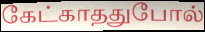
கேட்காததுபோல்